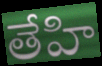
తేహి